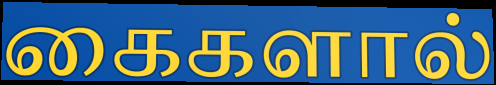
கைகளால்